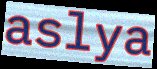
aslya